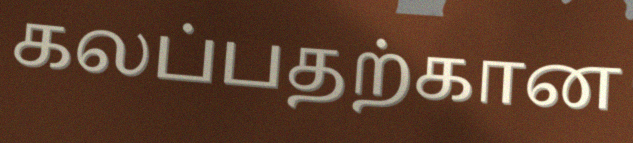
கலப்பதற்கான